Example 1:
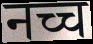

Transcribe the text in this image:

नच्च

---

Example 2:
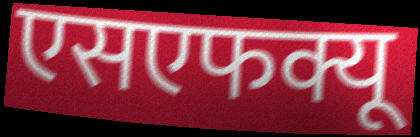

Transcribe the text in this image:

एसएफक्यू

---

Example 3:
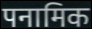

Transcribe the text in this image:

पनामिक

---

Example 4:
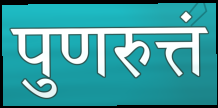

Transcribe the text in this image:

पुणरुत्तं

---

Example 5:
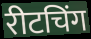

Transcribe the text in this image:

रीटचिंग